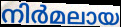
നിർമലായ